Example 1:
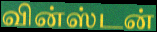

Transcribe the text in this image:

வின்ஸ்டன்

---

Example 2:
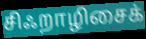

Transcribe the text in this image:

சிஃறாழிசைக்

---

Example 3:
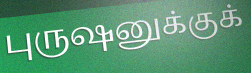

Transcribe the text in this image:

புருஷனுக்குக்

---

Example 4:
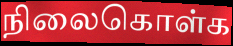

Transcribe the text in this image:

நிலைகொள்க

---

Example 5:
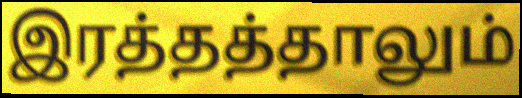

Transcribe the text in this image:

இரத்தத்தாலும்